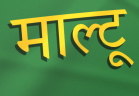
माल्टू